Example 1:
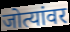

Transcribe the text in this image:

जोत्यांवर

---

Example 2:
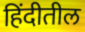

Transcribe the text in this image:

हिंदीतील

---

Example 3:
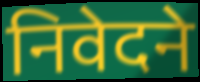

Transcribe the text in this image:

निवेदने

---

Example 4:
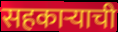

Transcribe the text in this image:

सहकाऱ्याची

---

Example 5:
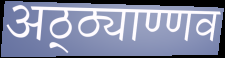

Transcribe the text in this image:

अठ्ठ्याण्णव